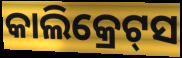
କାଲିକ୍ରେଟ୍‍ସ